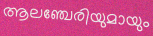
ആലഞ്ചേരിയുമായും